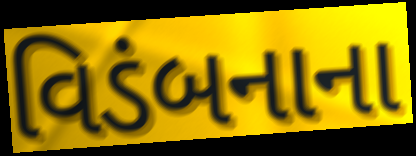
વિડંબનાના